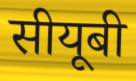
सीयूबी